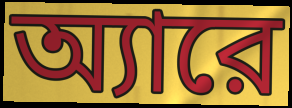
অ্যারে